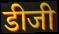
डीजी